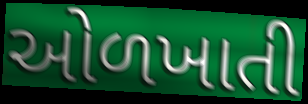
ઓળખાતી